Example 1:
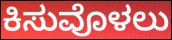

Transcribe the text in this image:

ಕಿಸುವೊಳಲು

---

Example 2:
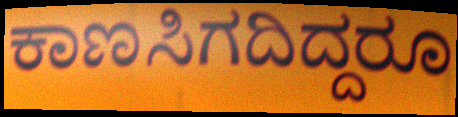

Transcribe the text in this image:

ಕಾಣಸಿಗದಿದ್ದರೂ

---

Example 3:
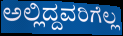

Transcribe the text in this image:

ಅಲ್ಲಿದ್ದವರಿಗೆಲ್ಲ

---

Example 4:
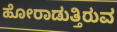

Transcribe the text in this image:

ಹೋರಾಡುತ್ತಿರುವ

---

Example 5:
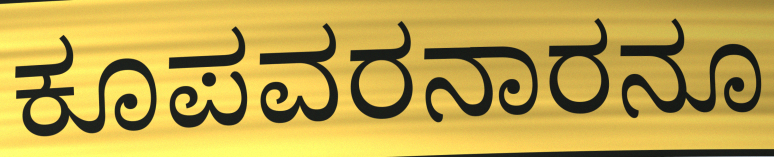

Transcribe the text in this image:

ಕೂಪವರನಾರನೂ